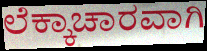
ಲೆಕ್ಕಾಚಾರವಾಗಿ